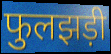
फुलझड़ी